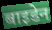
बाइडेन